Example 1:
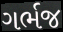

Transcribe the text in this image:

ગર્ભજ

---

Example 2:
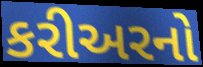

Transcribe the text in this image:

કરીઅરનો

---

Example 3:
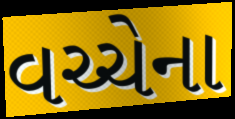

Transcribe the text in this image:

વચ્ચેના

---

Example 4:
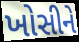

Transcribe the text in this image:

ખોસીને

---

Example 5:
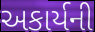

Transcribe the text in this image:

અકાર્યની